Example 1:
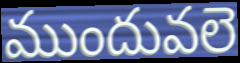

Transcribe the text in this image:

ముందువలె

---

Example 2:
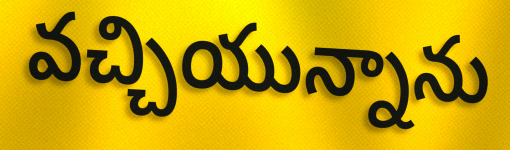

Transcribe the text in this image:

వచ్చియున్నాను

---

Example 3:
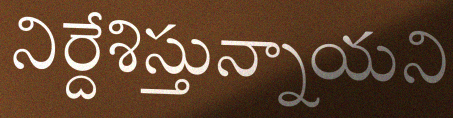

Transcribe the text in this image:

నిర్దేశిస్తున్నాయని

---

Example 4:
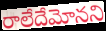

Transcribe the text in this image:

రాలేదేమోనని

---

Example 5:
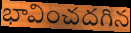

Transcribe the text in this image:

భావించదగిన